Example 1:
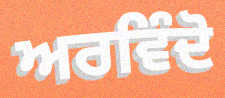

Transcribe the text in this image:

ਅਰਵਿੰਦੋ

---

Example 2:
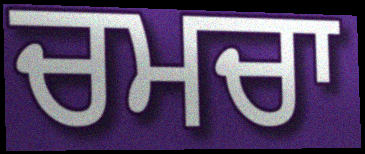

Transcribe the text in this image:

ਚਮਚਾ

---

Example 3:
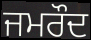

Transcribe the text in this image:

ਜਮਰੌਦ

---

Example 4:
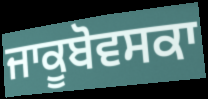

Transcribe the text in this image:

ਜਾਕੂਬੋਵਸਕਾ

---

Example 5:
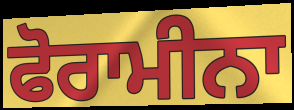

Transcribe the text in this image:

ਫੋਰਾਮੀਨਾ